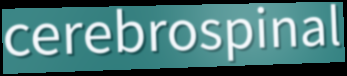
cerebrospinal